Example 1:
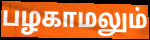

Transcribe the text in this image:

பழகாமலும்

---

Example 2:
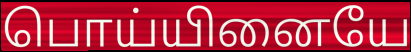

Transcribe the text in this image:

பொய்யினையே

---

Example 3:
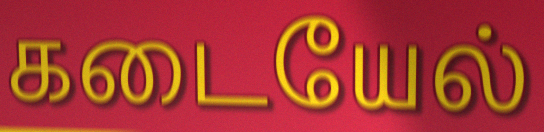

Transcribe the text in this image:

கடையேல்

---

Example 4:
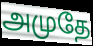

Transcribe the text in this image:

அமுதே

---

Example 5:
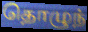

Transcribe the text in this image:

தொழுந்